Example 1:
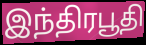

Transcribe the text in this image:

இந்திரபூதி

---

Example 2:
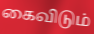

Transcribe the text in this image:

கைவிடும்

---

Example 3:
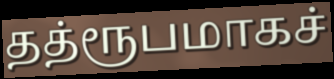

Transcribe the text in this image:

தத்ரூபமாகச்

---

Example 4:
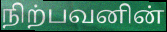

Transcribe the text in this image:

நிற்பவனின்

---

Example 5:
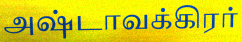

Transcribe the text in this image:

அஷ்டாவக்கிரர்